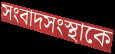
সংবাদসংস্থাকে